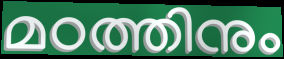
മഠത്തിനും